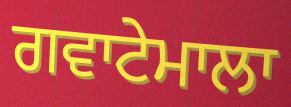
ਗਵਾਟੇਮਾਲਾ